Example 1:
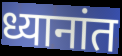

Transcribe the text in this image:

ध्यानांत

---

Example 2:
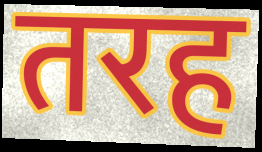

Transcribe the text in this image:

तरह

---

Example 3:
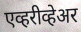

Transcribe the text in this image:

एव्हरीव्हेअर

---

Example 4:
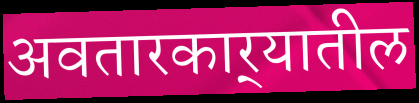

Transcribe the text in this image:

अवतारकार्यातील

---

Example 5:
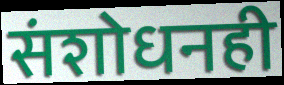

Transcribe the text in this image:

संशोधनही